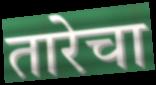
तारेचा